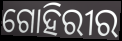
ଗୋହିରୀର